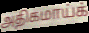
அதிகமாய்க்